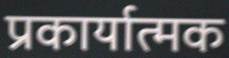
प्रकार्यात्मक